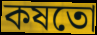
কষতো